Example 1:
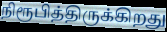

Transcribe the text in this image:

நிரூபித்திருக்கிறது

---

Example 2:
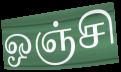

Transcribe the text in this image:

ஓஞ்சி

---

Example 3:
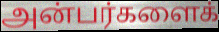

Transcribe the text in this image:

அன்பர்களைக்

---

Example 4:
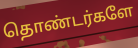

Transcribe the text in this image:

தொண்டர்களே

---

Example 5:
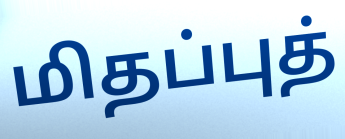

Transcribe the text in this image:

மிதப்புத்